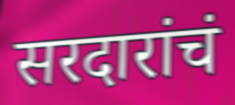
सरदारांचं